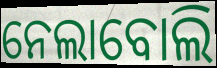
ନେଲାବୋଲି